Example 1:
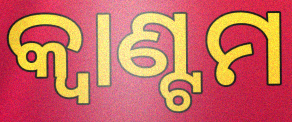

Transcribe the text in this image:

କ୍ୱାଣ୍ଟମ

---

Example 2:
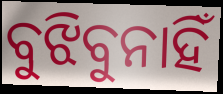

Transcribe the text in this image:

ବୁଝିବୁନାହିଁ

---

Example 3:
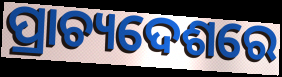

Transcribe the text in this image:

ପ୍ରାଚ୍ୟଦେଶରେ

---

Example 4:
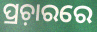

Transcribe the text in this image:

ପ୍ରଚ଼ାରରେ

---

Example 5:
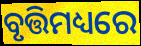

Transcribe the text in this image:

ବୃତ୍ତିମଧ୍ୟରେ